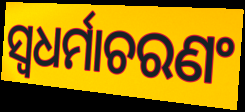
ସ୍ୱଧର୍ମାଚରଣଂ